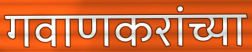
गवाणकरांच्या